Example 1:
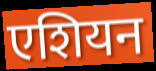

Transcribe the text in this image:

एशियन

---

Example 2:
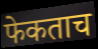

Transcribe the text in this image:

फेकताच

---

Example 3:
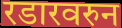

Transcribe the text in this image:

रडारवरुन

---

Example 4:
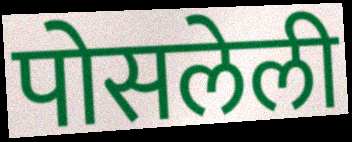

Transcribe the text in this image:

पोसलेली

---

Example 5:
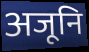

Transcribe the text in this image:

अजूनि